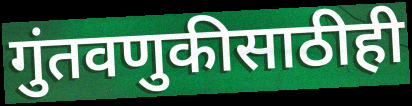
गुंतवणुकीसाठीही